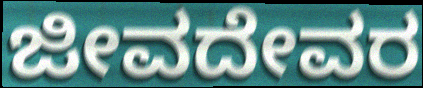
ಜೀವದೇವರ